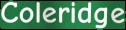
Coleridge